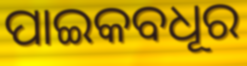
ପାଇକବଧୂର